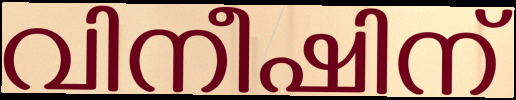
വിനീഷിന്